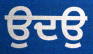
ਉਦਉ